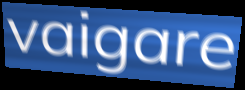
vaigare